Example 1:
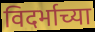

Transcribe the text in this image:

विदर्भाच्या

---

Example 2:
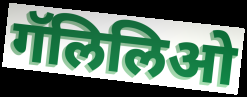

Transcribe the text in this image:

गॅलिलिओ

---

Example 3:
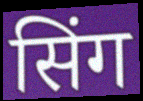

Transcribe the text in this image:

सिंग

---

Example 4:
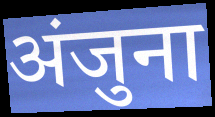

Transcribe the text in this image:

अंजुना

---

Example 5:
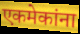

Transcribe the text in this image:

एकमेकांना